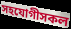
সহযোগীসকল